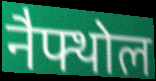
नैफ्थोल